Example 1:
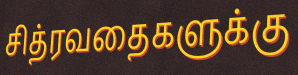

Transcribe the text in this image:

சித்ரவதைகளுக்கு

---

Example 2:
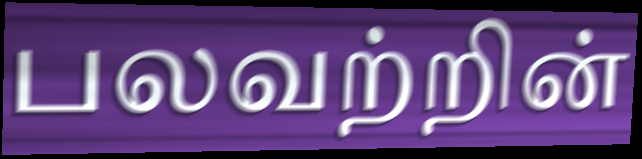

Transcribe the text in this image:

பலவற்றின்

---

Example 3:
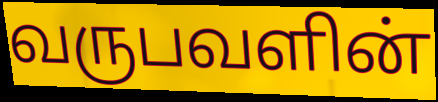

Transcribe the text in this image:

வருபவளின்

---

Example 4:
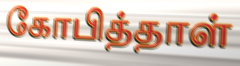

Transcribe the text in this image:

கோபித்தாள்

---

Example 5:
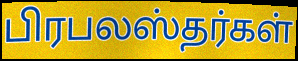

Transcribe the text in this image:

பிரபலஸ்தர்கள்